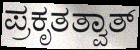
ಪ್ರಕೃತತ್ವಾತ್